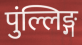
पुंल्लिङ्ग